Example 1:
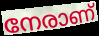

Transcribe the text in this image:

നേരാണ്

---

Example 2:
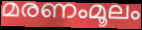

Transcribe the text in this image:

മരണംമൂലം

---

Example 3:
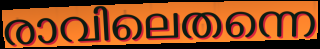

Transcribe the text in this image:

രാവിലെതന്നെ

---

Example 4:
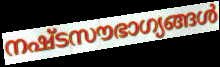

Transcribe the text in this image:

നഷ്ടസൗഭാഗ്യങ്ങൾ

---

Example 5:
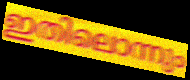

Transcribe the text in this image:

ഇതിലൊന്നും